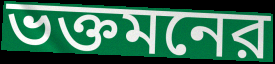
ভক্তমনের